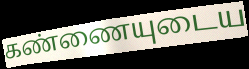
கண்ணையுடைய